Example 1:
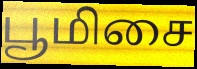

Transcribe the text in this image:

பூமிசை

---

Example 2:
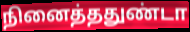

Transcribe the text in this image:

நினைத்ததுண்டா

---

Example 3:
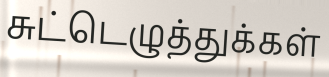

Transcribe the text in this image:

சுட்டெழுத்துக்கள்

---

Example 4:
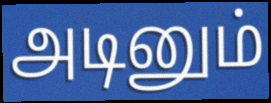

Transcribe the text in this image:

அடினும்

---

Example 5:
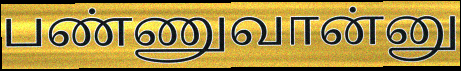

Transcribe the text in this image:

பண்ணுவான்னு